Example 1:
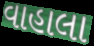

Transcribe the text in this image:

વાહાલા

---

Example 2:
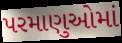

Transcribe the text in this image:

પરમાણુઓમાં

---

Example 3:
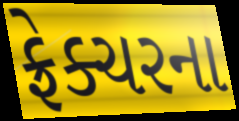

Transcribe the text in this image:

ફ્રેક્ચરના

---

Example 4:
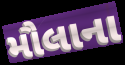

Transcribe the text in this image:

મૌલાના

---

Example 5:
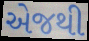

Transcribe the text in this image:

એજથી